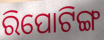
ରିପୋଟିଙ୍ଗ